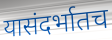
यासंदर्भातच